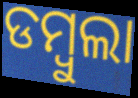
ଡମ୍ୱୁଲା